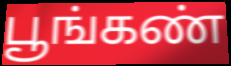
பூங்கண்